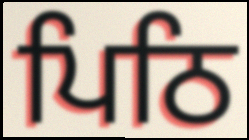
ਪਿਠਿ